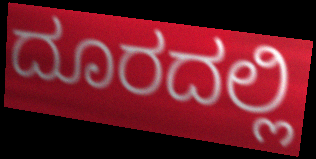
ದೂರದಲ್ಲಿ